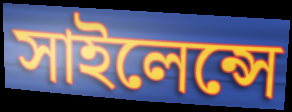
সাইলেন্সে